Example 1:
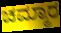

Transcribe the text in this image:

ಚಮ್ಮಾರ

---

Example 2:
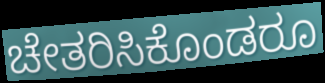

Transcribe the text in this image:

ಚೇತರಿಸಿಕೊಂಡರೂ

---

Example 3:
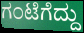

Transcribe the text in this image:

ಗಂಟೆಗೆದ್ದು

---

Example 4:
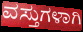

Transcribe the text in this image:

ವಸ್ತುಗಳಾಗಿ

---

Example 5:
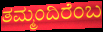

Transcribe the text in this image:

ತಮ್ಮಂದಿರೆಂಬ